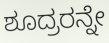
ಶೂದ್ರರನ್ನೇ